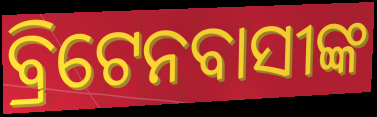
ବ୍ରିଟେନବାସୀଙ୍କ